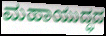
ಮಹಾಯುದ್ಧದ